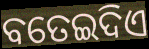
ବତେଇଦିଏ